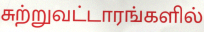
சுற்றுவட்டாரங்களில்